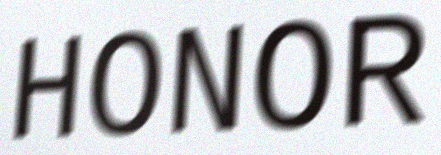
HONOR